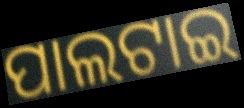
ପାଲଟାଇ